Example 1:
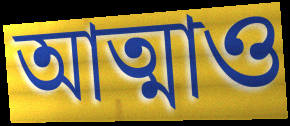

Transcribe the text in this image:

আত্মাও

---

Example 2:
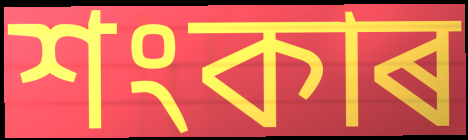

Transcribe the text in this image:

শংকাৰ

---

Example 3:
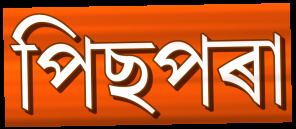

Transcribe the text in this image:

পিছপৰা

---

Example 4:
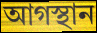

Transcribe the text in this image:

আগস্থান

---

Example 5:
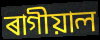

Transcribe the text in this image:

ৰাগীয়াল